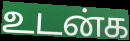
உடன்க